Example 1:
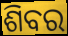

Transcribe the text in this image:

ଶିବର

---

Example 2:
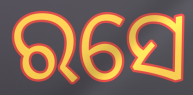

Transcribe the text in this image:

ରସେ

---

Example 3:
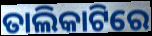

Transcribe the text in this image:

ତାଲିକାଟିରେ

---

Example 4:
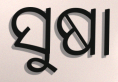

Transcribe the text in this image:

ସୁଷା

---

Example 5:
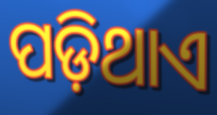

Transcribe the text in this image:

ପଡ଼ିଥାଏ